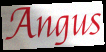
Angus